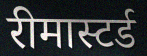
रीमास्टर्ड